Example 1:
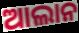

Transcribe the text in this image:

ଆଲାନ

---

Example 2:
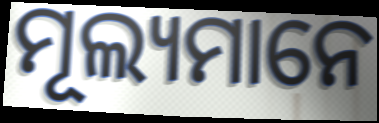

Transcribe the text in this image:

ମୂଲ୍ୟମାନେ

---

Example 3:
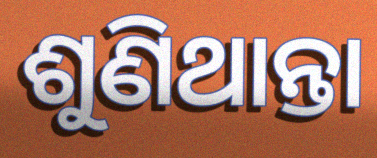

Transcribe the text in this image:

ଶୁଣିଥାନ୍ତା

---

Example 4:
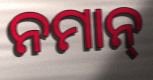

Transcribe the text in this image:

ନମାନ୍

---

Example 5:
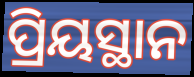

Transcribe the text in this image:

ପ୍ରିୟସ୍ଥାନ